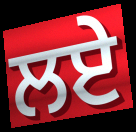
ਲਏੇ